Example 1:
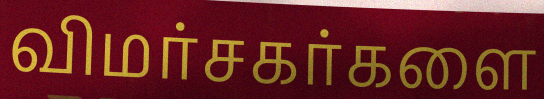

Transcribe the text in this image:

விமர்சகர்களை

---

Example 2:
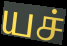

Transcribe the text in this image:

யச்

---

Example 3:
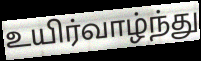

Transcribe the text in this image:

உயிர்வாழ்ந்து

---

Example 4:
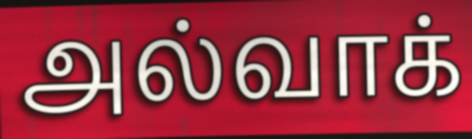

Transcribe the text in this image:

அல்வாக்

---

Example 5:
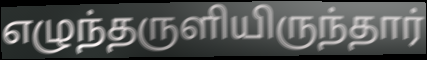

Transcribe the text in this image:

எழுந்தருளியிருந்தார்